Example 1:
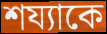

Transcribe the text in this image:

শয্যাকে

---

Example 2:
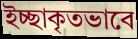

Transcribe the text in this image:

ইচ্ছাকৃতভাবে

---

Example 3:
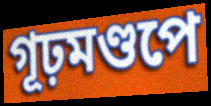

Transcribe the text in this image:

গূঢ়মণ্ডপে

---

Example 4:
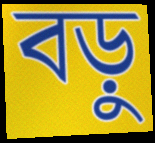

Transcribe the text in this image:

বড়ু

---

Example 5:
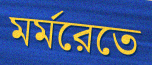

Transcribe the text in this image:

মর্মরেতে